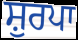
ਸ਼ੁਰਪਾ